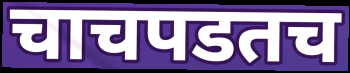
चाचपडतच